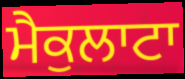
ਮੈਕੁਲਾਟਾ